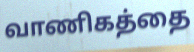
வாணிகத்தை